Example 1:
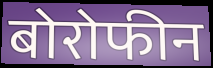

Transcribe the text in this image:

बोरोफीन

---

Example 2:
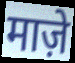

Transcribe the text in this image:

माज़े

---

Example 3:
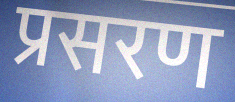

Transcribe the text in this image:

प्रसरण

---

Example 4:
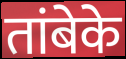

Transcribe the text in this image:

तांबेके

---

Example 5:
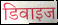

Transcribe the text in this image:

डिवाइज